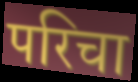
परिचा